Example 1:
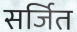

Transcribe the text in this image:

सर्जित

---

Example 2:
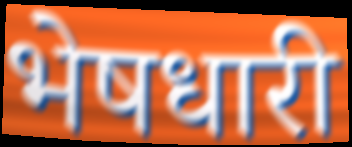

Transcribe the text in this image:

भेषधारी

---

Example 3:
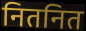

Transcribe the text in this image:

नितनित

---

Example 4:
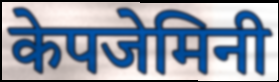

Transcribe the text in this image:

केपजेमिनी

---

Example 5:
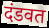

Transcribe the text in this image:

दंडवत